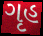
ગૃહ